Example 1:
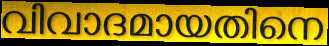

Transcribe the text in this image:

വിവാദമായതിനെ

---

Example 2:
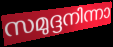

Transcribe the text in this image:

സമുദ്ദനിന്നാ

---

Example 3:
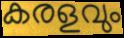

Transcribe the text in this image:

കരളവും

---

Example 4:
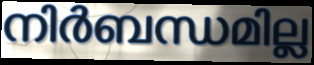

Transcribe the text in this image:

നിർബന്ധമില്ല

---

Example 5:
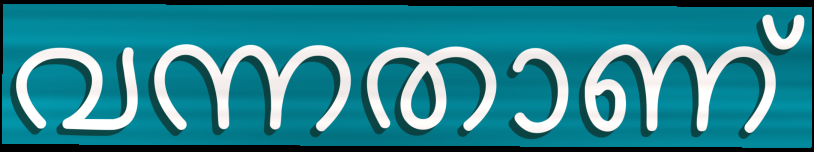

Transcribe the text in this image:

വന്നതാണ്